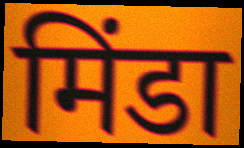
मिंडा